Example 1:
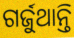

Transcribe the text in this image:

ଗର୍ଜୁଥାନ୍ତି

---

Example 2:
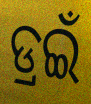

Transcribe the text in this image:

ଡ୍ରଇଁ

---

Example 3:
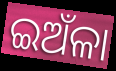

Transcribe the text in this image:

ଇଅଁଳା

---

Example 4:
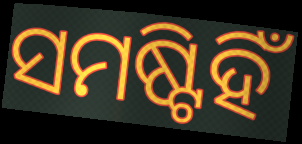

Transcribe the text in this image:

ସମଷ୍ଟିହିଁ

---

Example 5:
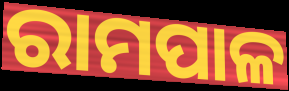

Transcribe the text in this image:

ରାମପାଳ